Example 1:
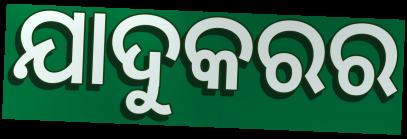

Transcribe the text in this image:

ଯାଦୁକରର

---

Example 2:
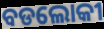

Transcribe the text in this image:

ବଡଲୋକୀ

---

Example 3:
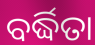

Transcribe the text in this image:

ବର୍ଦ୍ଧିତା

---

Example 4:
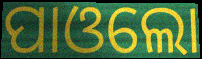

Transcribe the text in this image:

ପାଓଲୋ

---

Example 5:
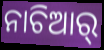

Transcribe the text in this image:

ନାଚିଆର୍